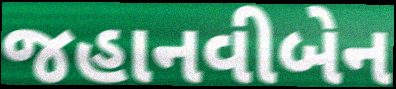
જહાનવીબેન